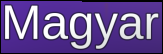
Magyar